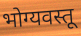
भोग्यवस्तू